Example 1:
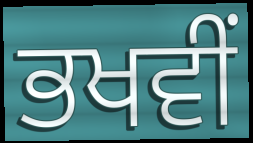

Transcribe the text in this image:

ਭਖਵੀਂ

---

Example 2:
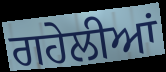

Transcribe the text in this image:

ਗਹੇਲੀਆਂ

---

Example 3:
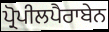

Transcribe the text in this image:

ਪ੍ਰੋਪੀਲਪੈਰਾਬੇਨ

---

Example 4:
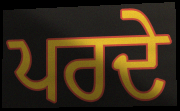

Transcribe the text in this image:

ਪਰਦੇ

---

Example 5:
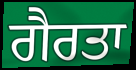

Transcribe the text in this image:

ਗੈਰਤਾ